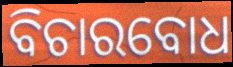
ବିଚାରବୋଧ